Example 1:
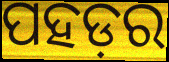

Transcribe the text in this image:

ପହଡ଼ର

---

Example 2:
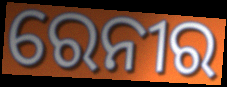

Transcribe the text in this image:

ରେନୀର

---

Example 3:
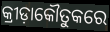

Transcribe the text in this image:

କ୍ରୀଡ଼ାକୌତୁକରେ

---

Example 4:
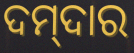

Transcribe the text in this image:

ଦମ୍‌ଦାର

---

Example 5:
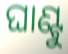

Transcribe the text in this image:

ଘାଣ୍ଟୁ